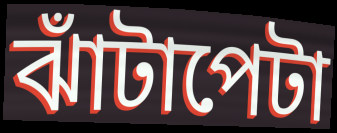
ঝাঁটাপেটা